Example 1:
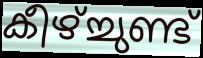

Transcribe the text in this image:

കീഴ്ച്ചുണ്ട്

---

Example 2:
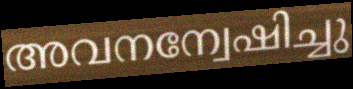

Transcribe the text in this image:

അവനന്വേഷിച്ചു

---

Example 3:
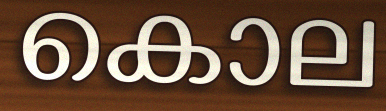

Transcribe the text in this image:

കൊല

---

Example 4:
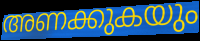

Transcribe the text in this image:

അണക്കുകയും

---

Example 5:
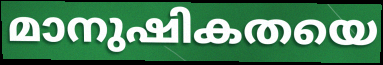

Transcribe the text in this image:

മാനുഷികതയെ